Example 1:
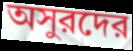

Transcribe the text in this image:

অসুরদের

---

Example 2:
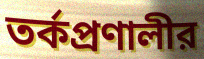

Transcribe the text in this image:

তর্কপ্রণালীর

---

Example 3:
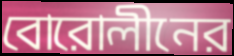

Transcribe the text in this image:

বোরোলীনের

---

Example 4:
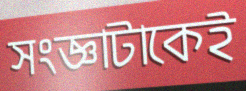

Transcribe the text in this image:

সংজ্ঞাটাকেই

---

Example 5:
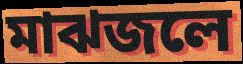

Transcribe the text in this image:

মাঝজলে